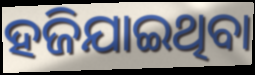
ହଜିଯାଇଥିବା